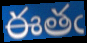
ఈతఁ